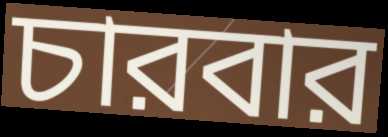
চারবার